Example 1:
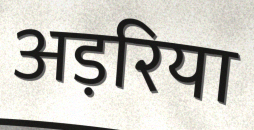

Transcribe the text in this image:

अड़रिया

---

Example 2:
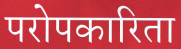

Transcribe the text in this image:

परोपकारिता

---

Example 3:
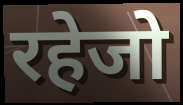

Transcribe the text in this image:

रहेजो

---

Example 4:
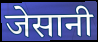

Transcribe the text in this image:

जेसानी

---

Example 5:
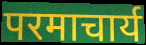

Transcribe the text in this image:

परमाचार्य